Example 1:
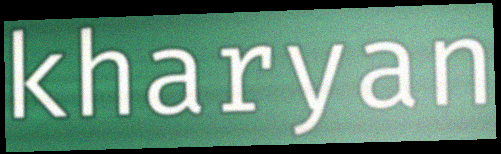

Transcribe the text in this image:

kharyan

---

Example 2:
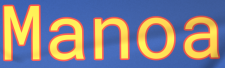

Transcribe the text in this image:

Manoa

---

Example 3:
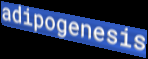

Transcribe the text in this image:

adipogenesis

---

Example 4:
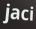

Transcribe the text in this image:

jaci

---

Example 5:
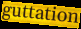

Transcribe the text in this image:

guttation